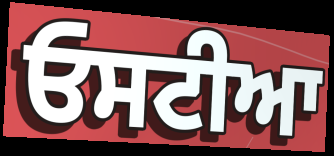
ਓਸਟੀਆ